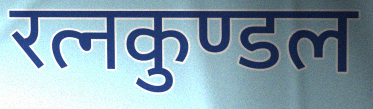
रत्नकुण्डल